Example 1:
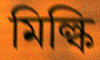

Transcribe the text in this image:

মিল্কি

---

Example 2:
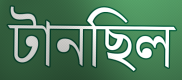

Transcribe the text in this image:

টানছিল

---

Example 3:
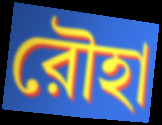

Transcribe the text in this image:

রৌহা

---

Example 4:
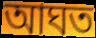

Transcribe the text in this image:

আঘত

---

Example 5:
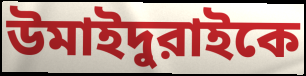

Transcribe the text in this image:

উমাইদুরাইকে